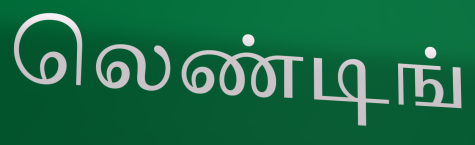
லெண்டிங்